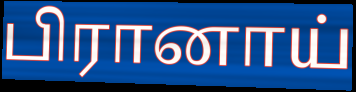
பிரானாய்